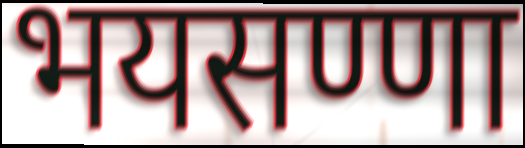
भयसण्णा